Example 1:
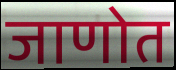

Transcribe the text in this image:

जाणोत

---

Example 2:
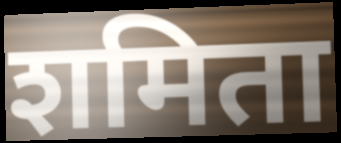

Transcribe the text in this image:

शमिता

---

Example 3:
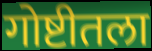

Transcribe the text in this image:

गोष्टीतला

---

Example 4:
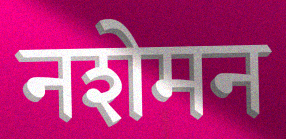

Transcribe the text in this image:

नशेमन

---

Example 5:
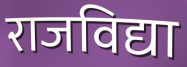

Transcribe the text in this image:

राजविद्या